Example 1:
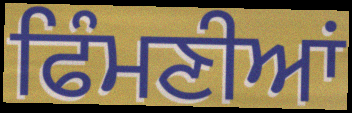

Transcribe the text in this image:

ਫਿੰਮਣੀਆਂ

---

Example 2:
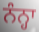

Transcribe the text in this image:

ਨੰਨ੍ਹਾ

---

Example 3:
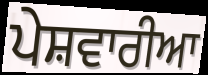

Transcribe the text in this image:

ਪੇਸ਼ਵਾਰੀਆ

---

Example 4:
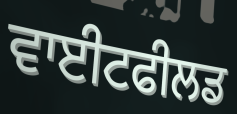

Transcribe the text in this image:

ਵਾਈਟਫੀਲਡ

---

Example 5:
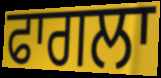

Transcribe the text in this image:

ਫਾਗਲਾ